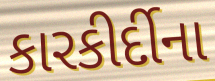
કારકીર્દીના